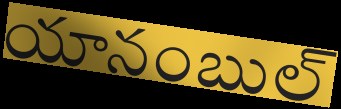
యానంబుల్